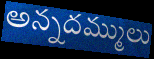
అన్నదమ్ములు